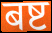
बष्ट